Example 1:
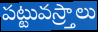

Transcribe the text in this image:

పట్టువస్ర్తాలు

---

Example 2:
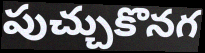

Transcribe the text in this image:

పుచ్చుకొనగ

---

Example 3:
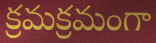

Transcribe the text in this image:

క్రమక్రమంగా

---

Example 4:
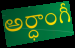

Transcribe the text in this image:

అర్ధాంగీ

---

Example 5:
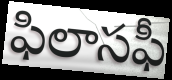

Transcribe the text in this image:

ఫిలాసఫీ